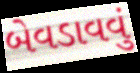
બેવડાવવું